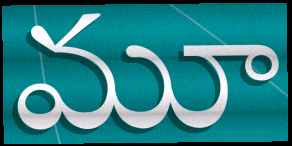
మూ